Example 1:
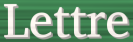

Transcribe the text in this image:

Lettre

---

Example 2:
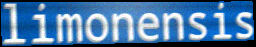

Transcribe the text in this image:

limonensis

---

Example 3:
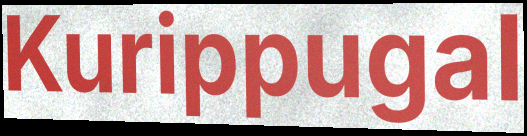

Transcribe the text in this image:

Kurippugal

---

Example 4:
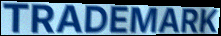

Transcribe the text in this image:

TRADEMARK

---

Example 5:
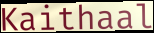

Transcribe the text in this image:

Kaithaal